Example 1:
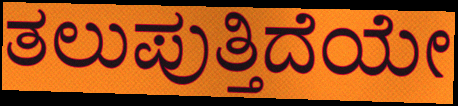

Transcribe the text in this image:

ತಲುಪುತ್ತಿದೆಯೇ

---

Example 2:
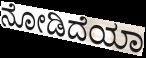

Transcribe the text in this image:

ನೋಡಿದೆಯಾ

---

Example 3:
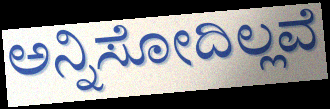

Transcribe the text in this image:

ಅನ್ನಿಸೋದಿಲ್ಲವೆ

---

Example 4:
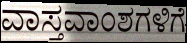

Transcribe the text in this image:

ವಾಸ್ತವಾಂಶಗಳಿಗೆ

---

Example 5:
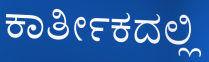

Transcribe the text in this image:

ಕಾರ್ತೀಕದಲ್ಲಿ